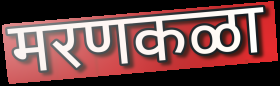
मरणकळा